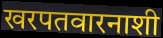
खरपतवारनाशी